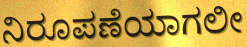
ನಿರೂಪಣೆಯಾಗಲೀ